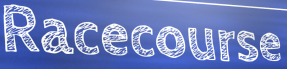
Racecourse